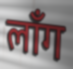
लाँग